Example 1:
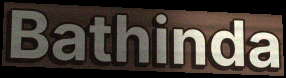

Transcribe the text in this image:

Bathinda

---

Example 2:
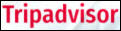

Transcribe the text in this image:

Tripadvisor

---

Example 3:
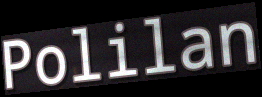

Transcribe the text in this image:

Polilan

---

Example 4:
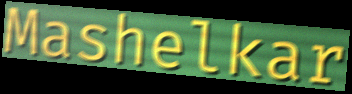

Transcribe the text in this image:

Mashelkar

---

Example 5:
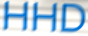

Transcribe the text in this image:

HHD